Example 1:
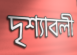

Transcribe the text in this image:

দৃশ্যাবলী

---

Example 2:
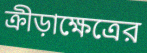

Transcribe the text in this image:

ক্রীড়াক্ষেত্রের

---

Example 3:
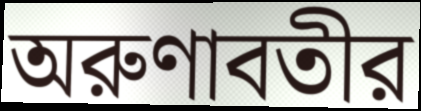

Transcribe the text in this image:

অরুণাবতীর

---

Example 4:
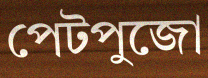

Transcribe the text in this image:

পেটপুজো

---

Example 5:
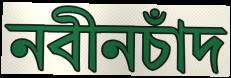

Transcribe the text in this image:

নবীনচাঁদ